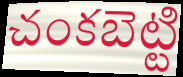
చంకబెట్టి